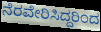
ನೆರವೇರಿಸಿದ್ದರಿಂದ